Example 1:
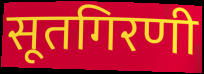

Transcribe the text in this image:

सूतगिरणी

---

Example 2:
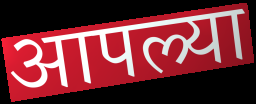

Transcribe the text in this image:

आपल्या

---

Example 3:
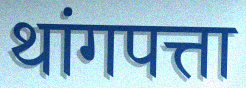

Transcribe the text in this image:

थांगपत्ता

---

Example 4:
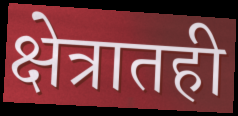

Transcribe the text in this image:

क्षेत्रातही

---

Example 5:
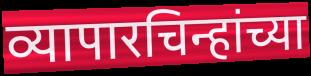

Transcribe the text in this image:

व्यापारचिन्हांच्या